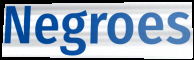
Negroes